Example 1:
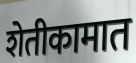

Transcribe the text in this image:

शेतीकामात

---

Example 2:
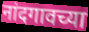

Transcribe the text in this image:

नांदगावच्या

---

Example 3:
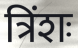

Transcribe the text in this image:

त्रिंशः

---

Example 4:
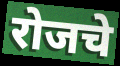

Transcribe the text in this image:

रोजचे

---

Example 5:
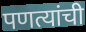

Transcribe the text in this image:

पणत्यांची